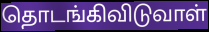
தொடங்கிவிடுவாள்